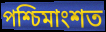
পশ্চিমাংশত